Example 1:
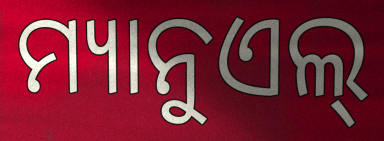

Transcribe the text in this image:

ମ୍ୟାନୁଏଲ୍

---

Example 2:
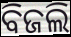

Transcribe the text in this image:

ବିଜଲି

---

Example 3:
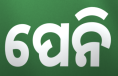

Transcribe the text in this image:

ପେନି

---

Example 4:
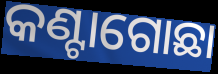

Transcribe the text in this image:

କଣ୍ଟାଗୋଛା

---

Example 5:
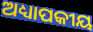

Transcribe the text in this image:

ଅଧ୍ୟାପକୀୟ